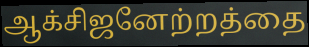
ஆக்சிஜனேற்றத்தை